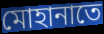
মোহানাতে